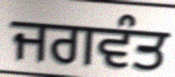
ਜਗਵੰਤ